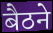
बैठने